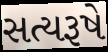
સત્યરૂષે